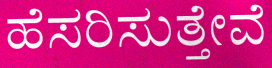
ಹೆಸರಿಸುತ್ತೇವೆ